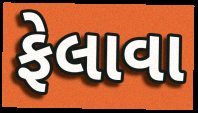
ફેલાવા